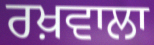
ਰਖ਼ਵਾਲਾ